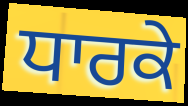
ਧਾਰਕੇ